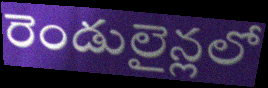
రెండులైన్లలో